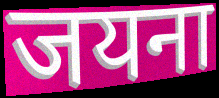
जयना